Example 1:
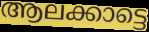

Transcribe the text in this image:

ആലക്കാട്ടെ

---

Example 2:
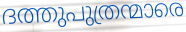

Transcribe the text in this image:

ദത്തുപുത്രന്മാരെ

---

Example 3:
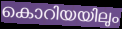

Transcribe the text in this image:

കൊറിയയിലും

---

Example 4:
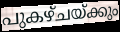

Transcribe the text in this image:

പുകഴ്ചയ്ക്കും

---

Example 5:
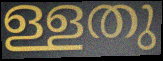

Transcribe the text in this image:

ള്ളതു